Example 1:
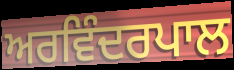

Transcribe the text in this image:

ਅਰਵਿੰਦਰਪਾਲ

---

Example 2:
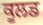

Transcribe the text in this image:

ਕੂਲਡ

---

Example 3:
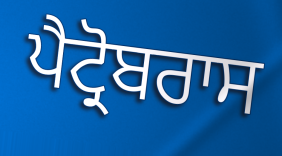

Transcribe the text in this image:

ਪੈਟ੍ਰੋਬਰਾਸ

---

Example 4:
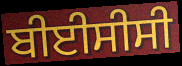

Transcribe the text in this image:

ਬੀਈਸੀਸੀ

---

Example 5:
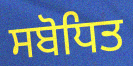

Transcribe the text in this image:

ਸਬੋਧਿਤ